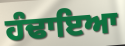
ਹੰਢਾਇਆ